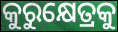
କୁରୁକ୍ଷେତ୍ରକୁ